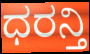
ಧರನ್ತಿ